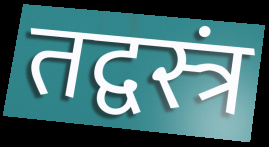
तद्वस्त्रं